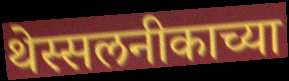
थेस्सलनीकाच्या